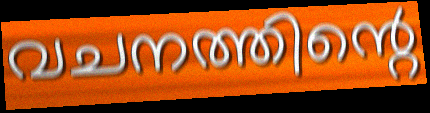
വചനത്തിന്റെ